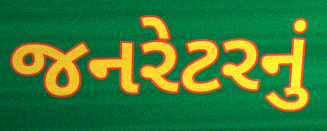
જનરેટરનું